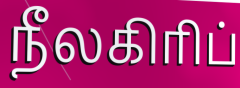
நீலகிரிப்